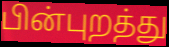
பின்புறத்து